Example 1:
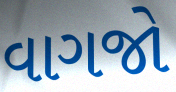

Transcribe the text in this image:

વાગજો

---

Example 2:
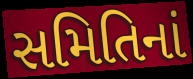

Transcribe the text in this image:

સમિતિનાં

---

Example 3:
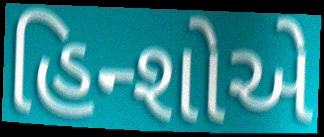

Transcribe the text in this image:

હિન્શોએ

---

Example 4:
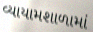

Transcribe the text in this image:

વ્યાયામશાળામાં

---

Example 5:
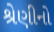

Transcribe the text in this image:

શ્રેણીનો